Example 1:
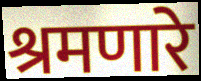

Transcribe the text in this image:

श्रमणारे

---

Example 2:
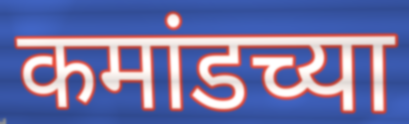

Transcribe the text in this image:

कमांडच्या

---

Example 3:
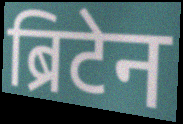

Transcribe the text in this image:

ब्रिटेन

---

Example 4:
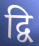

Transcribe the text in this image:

द्वि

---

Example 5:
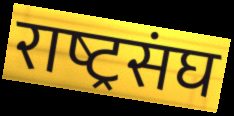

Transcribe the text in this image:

राष्ट्रसंघ